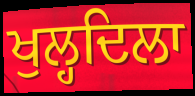
ਖੁਲ੍ਹਦਿਲਾ